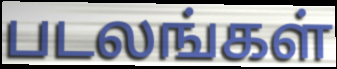
படலங்கள்